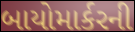
બાયોમાર્કરની